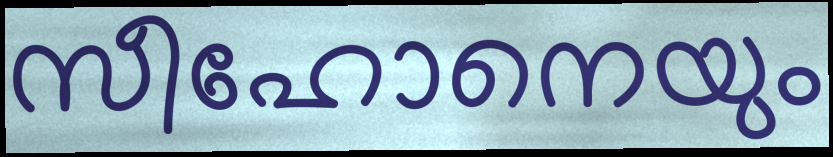
സീഹോനെയും